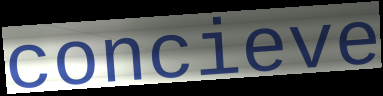
concieve